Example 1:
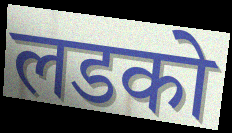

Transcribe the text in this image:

लडको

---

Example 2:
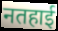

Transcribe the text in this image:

नतहाई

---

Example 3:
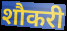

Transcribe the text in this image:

शौकरी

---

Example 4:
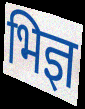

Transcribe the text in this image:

भिज्ञ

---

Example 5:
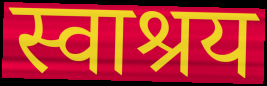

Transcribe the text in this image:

स्वाश्रय